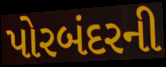
પોરબંદરની